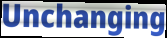
Unchanging